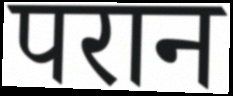
परान